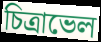
চিত্রাভেল